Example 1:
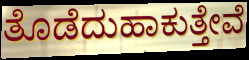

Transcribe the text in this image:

ತೊಡೆದುಹಾಕುತ್ತೇವೆ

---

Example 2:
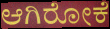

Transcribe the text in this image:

ಆಗಿರೋಕೆ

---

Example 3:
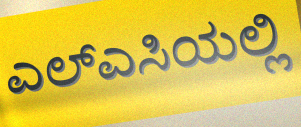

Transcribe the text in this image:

ಎಲ್ಎಸಿಯಲ್ಲಿ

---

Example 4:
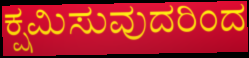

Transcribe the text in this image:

ಕ್ಷಮಿಸುವುದರಿಂದ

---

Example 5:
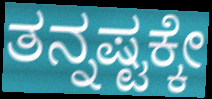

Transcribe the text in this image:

ತನ್ನಷ್ಟಕ್ಕೇ